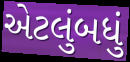
એટલુંબધું